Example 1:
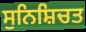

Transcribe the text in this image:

ਸੁਨਿਸ਼ਿਚਤ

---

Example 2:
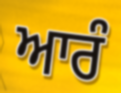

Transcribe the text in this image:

ਆਰੰ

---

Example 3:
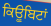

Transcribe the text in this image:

ਕਿਊਬਿਟਾਂ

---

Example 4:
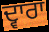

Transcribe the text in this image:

ਦ੍ਵਾਰਾ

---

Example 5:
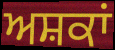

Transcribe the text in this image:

ਅਸ਼ਕਾਂ